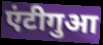
एंटीगुआ